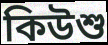
কিউশু